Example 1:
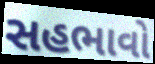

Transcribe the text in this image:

સહભાવો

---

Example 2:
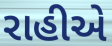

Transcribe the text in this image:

રાહીએ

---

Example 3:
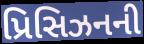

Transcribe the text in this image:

પ્રિસિઝનની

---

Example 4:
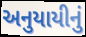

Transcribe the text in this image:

અનુયાયીનું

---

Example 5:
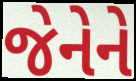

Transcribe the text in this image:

જેનેને